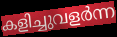
കളിച്ചുവളർന്ന